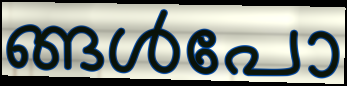
ങ്ങൾപോ